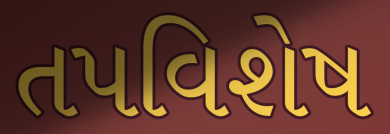
તપવિશેષ